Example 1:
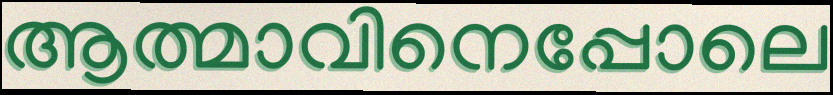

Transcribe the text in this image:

ആത്മാവിനെപ്പോലെ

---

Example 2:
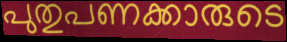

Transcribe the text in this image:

പുതുപണക്കാരുടെ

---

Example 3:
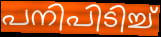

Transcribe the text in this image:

പനിപിടിച്ച്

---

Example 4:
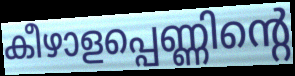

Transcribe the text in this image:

കീഴാളപ്പെണ്ണിന്റെ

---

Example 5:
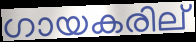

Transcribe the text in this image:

ഗായകരില്